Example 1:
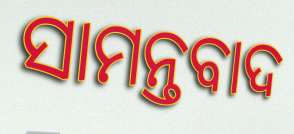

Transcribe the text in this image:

ସାମନ୍ତବାଦ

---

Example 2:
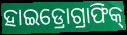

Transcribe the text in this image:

ହାଇଡ୍ରୋଗ୍ରାଫିକ୍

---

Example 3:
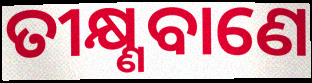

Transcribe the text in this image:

ତୀକ୍ଷ୍ଣବାଣେ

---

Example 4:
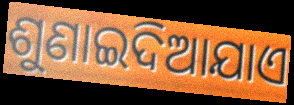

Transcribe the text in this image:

ଶୁଣାଇଦିଆଯାଏ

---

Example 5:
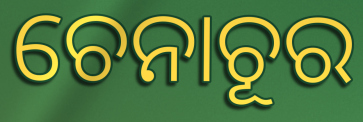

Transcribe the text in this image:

ଚେନାଚୂର